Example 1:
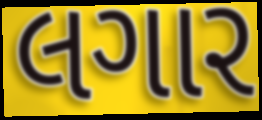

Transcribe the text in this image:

લગાર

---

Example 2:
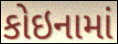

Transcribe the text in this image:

કોઇનામાં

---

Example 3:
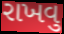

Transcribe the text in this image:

રાખવુ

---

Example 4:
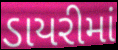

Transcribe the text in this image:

ડાયરીમાં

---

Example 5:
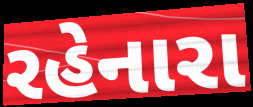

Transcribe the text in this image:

રહેનારા